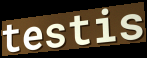
testis